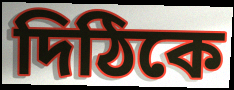
দিঠিকে